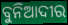
ବୁନିଆଦୀର